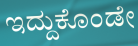
ಇದ್ದುಕೊಂಡೇ